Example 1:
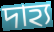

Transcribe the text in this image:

দাহ্য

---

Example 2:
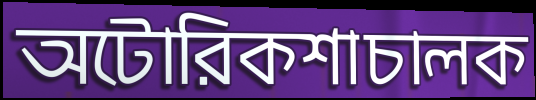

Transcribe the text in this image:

অটোরিকশাচালক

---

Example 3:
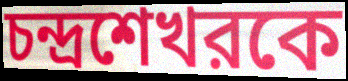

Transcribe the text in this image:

চন্দ্রশেখরকে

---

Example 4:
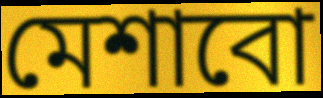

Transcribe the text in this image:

মেশাবো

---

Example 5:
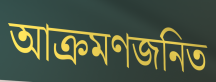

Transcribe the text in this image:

আক্রমণজনিত